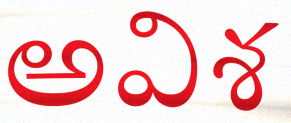
అవిశ